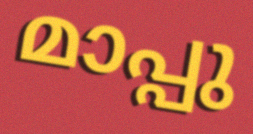
മാപ്പു